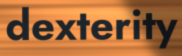
dexterity